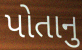
પોતાનુ